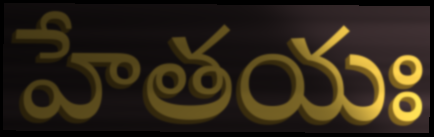
హేతయః